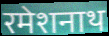
रमेशनाथ